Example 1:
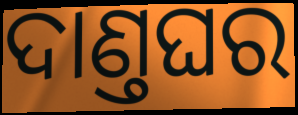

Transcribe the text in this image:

ଦାଣ୍ତଘର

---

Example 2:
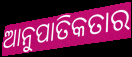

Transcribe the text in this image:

ଆନୁପାତିକତାର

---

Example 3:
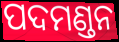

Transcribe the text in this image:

ପଦମଣ୍ଡନ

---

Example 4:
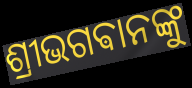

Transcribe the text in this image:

ଶ୍ରୀଭଗଵାନଙ୍କୁ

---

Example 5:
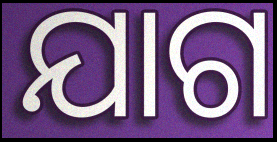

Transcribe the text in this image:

ଯାଗ